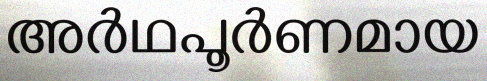
അർഥപൂർണമായ